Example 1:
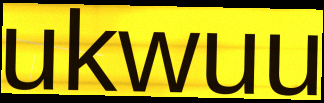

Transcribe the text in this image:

ukwuu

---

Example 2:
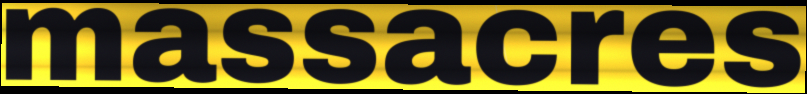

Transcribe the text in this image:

massacres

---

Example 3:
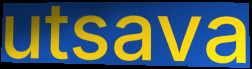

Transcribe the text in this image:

utsava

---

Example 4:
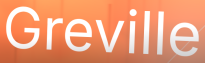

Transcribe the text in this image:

Greville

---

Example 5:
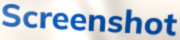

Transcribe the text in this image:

Screenshot